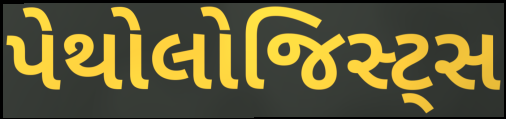
પેથોલોજિસ્ટ્સ